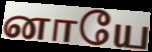
னாயே